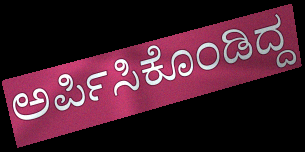
ಅರ್ಪಿಸಿಕೊಂಡಿದ್ದ